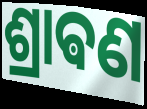
ଶ୍ରାଵଣ